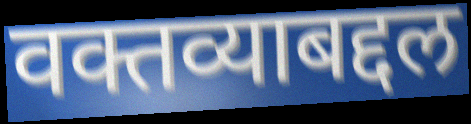
वक्तव्याबद्दल